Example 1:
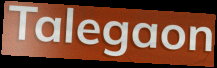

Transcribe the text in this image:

Talegaon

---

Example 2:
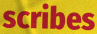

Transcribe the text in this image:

scribes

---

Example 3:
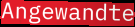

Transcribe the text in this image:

Angewandte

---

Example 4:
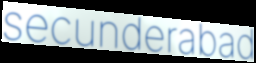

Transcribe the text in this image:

secunderabad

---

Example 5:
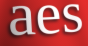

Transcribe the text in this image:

aes